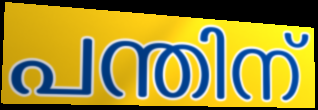
പന്തിന്